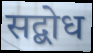
सद्बोध